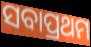
ସବାପ୍ରଥମ